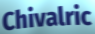
Chivalric